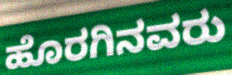
ಹೊರಗಿನವರು